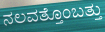
ನಲವತ್ತೊಂಬತ್ತು